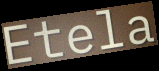
Etela